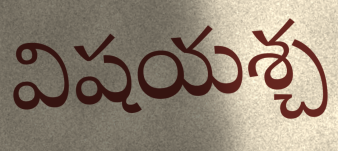
విషయశ్చ